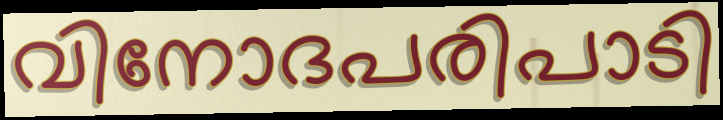
വിനോദപരിപാടി